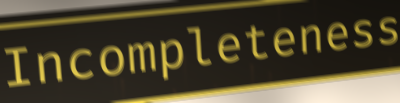
Incompleteness